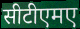
सीटीएमए